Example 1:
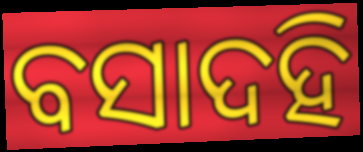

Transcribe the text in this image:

ବସାଦହି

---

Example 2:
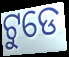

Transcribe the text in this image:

ଟୁଡେ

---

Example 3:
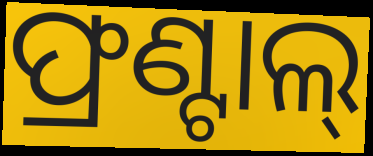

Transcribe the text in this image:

ଫ୍ରଣ୍ଟାଲ୍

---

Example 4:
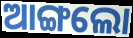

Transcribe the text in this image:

ଆଙ୍ଗଲୋ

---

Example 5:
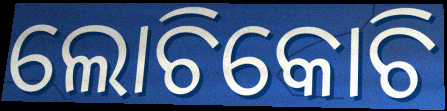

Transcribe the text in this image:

ଲୋଚିକୋଚି